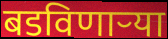
बडविणाऱ्या